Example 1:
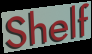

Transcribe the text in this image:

Shelf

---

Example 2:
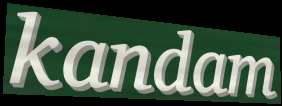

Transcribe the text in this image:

kandam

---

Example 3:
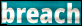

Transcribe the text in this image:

breach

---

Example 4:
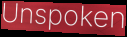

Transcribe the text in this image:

Unspoken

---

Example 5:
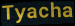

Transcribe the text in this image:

Tyacha